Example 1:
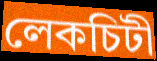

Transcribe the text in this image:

লেকচিটী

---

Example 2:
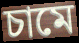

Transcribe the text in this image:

চামে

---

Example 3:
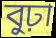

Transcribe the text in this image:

বুঢ়া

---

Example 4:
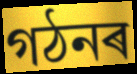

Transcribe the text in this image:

গঠনৰ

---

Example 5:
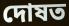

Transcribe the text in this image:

দোষত